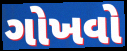
ગોખવો